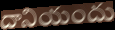
దానియందు